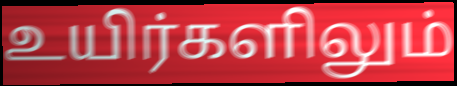
உயிர்களிலும்